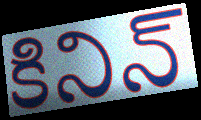
కినిన్